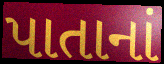
પાતાનાં